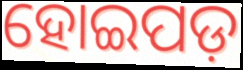
ହୋଇପଡ଼